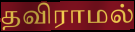
தவிராமல்